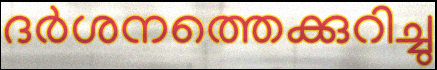
ദർശനത്തെക്കുറിച്ചു